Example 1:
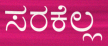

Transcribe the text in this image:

ಸರಕೆಲ್ಲ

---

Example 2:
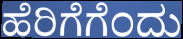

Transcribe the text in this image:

ಹೆರಿಗೆಗೆಂದು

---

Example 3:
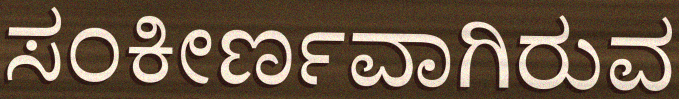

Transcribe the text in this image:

ಸಂಕೀರ್ಣವಾಗಿರುವ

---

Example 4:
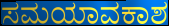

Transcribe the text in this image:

ಸಮಯಾವಕಾಶ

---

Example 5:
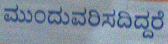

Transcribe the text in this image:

ಮುಂದುವರಿಸದಿದ್ದರೆ